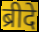
ब्रीदे